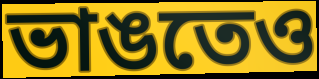
ভাঙতেও